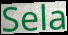
Sela